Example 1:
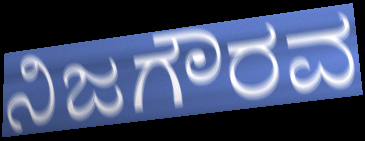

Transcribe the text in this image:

ನಿಜಗೌರವ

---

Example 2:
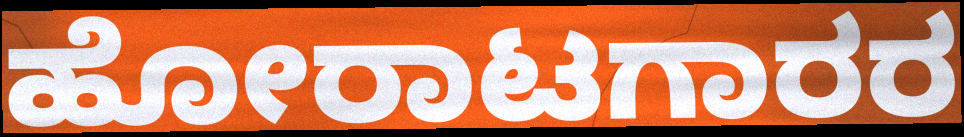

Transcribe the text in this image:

ಹೋರಾಟಗಾರರ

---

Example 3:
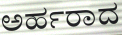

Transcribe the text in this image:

ಅರ್ಹರಾದ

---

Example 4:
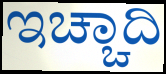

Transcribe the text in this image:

ಇಚ್ಚಾದಿ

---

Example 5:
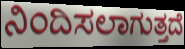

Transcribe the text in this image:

ನಿಂದಿಸಲಾಗುತ್ತದೆ